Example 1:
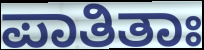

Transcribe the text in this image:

ಪಾತಿತಾಃ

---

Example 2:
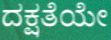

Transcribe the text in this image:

ದಕ್ಷತೆಯೇ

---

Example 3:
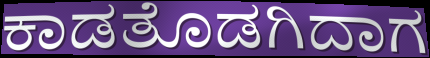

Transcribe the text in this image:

ಕಾಡತೊಡಗಿದಾಗ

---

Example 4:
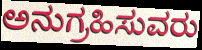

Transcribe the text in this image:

ಅನುಗ್ರಹಿಸುವರು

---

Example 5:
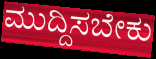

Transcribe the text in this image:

ಮುದ್ದಿಸಬೇಕು